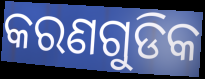
କରଣଗୁଡିକ